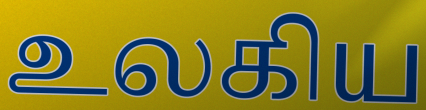
உலகிய